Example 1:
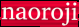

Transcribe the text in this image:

naoroji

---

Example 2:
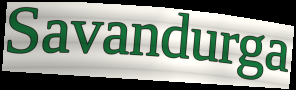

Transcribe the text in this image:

Savandurga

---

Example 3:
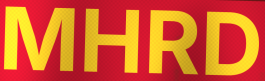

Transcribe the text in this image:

MHRD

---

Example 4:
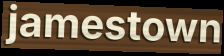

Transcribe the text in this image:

jamestown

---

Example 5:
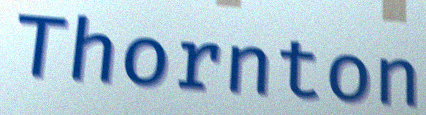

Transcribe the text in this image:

Thornton